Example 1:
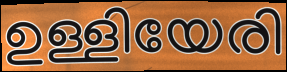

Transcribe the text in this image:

ഉള്ളിയേരി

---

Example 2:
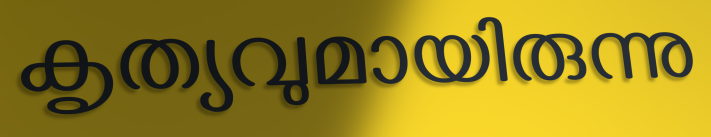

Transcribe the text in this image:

കൃത്യവുമായിരുന്നു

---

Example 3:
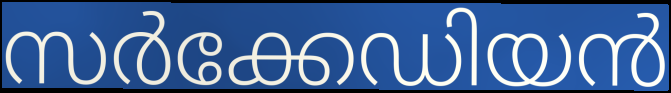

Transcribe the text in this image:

സർക്കേഡിയൻ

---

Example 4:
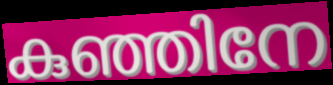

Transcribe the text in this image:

കുഞ്ഞിനേ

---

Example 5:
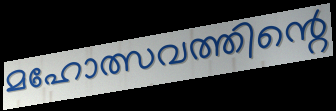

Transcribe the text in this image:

മഹോത്സവത്തിന്റെ